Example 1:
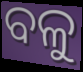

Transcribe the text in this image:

ବଳୁ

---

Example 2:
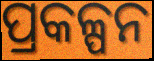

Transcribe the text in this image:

ପ୍ରକଳ୍ପନ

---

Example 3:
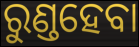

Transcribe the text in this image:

ରୁଣ୍ଡହେବା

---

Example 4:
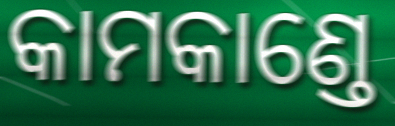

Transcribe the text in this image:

କାମକାଣ୍ଡେ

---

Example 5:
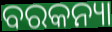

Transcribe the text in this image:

ବରକନ୍ୟା